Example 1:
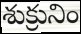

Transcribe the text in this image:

శుక్రునిం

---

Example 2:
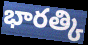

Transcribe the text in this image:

భారత్కి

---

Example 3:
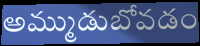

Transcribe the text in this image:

అమ్ముడుబోవడం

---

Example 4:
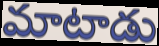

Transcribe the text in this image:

మాటాడు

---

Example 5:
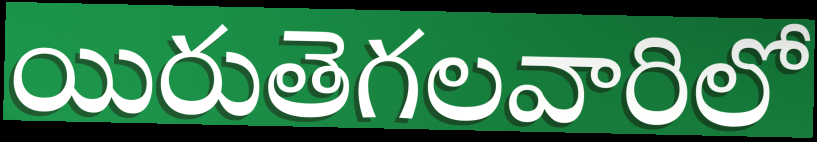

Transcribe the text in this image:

యిరుతెగలవారిలో